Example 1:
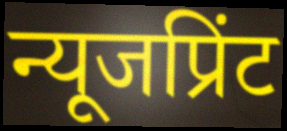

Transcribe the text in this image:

न्यूजप्रिंट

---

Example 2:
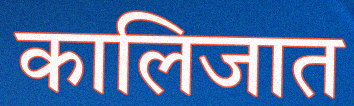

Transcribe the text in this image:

कालिजात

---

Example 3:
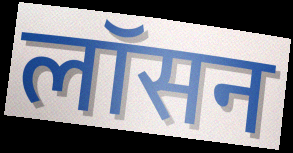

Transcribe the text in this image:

लॉसन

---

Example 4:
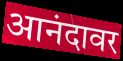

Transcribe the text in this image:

आनंदावर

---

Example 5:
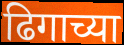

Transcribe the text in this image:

ढिगाच्या